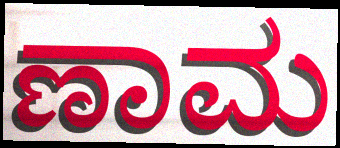
ಣಾಮ